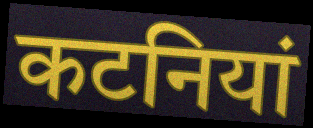
कटनियां